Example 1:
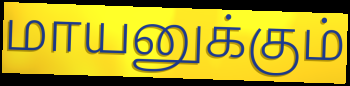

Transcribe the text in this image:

மாயனுக்கும்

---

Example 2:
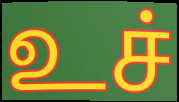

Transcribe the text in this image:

உச்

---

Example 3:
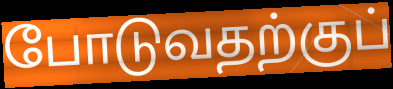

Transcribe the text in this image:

போடுவதற்குப்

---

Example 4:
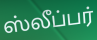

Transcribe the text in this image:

ஸ்லீப்பர்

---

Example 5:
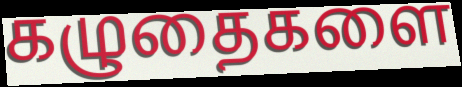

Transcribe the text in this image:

கழுதைகளை